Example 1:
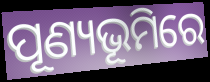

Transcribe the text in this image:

ପୂଣ୍ୟଭୂମିରେ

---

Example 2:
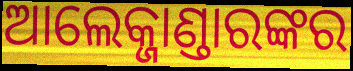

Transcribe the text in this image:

ଆଲେକ୍ଜାଣ୍ଡାରଙ୍କର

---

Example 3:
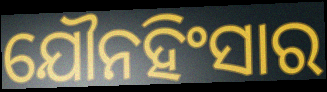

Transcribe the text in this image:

ଯୌନହିଂସାର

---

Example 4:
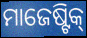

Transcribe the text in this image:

ମାଜେଷ୍ଟିକ୍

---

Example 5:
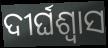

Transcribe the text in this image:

ଦୀର୍ଘଶ୍ୱାସ